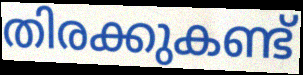
തിരക്കുകണ്ട്